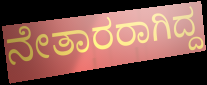
ನೇತಾರರಾಗಿದ್ದ